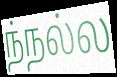
ந்நல்ல